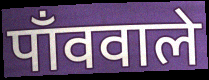
पाँववाले